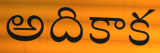
అదికాక